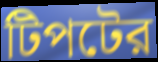
টিপটের